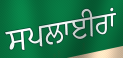
ਸਪਲਾਈਰਾਂ